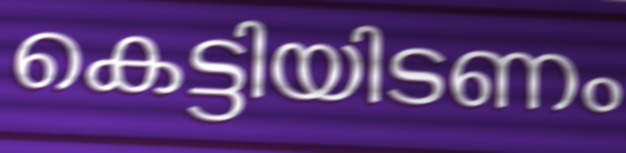
കെട്ടിയിടണം